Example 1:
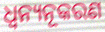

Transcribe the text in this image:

ଧ୍ୱନ୍ୟନୂକରଣ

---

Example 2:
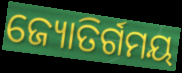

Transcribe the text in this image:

ଜ୍ୟୋତିର୍ଗମୟ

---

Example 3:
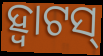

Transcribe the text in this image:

ହ୍ୱାଟସ୍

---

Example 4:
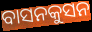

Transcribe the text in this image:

ବାସନକୁସନ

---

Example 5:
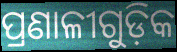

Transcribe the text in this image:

ପ୍ରଣାଳୀଗୁଡ଼ିକ